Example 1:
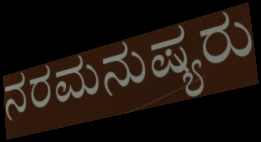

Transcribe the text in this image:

ನರಮನುಷ್ಯರು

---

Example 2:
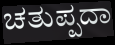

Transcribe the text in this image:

ಚತುಪ್ಪದಾ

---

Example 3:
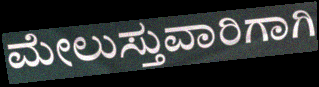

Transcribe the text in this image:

ಮೇಲುಸ್ತುವಾರಿಗಾಗಿ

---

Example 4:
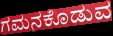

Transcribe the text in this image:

ಗಮನಕೊಡುವ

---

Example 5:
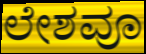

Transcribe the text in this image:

ಲೇಶವೂ